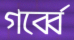
গর্ব্বে